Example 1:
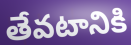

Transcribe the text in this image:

తేవటానికి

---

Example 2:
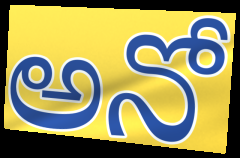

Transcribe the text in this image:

అనో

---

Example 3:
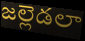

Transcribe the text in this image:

జల్లెడలా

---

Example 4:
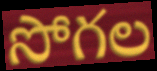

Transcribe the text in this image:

సోగల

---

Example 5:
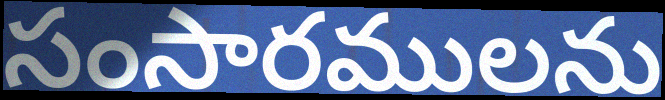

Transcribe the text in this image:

సంసారములను